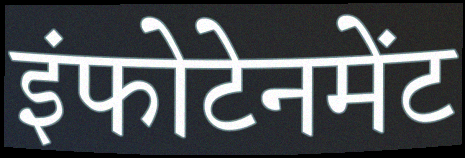
इंफोटेनमेंट